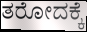
ತರೋದಕ್ಕೆ